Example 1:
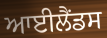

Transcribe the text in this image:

ਆਈਲੈਂਡਸ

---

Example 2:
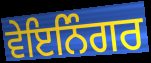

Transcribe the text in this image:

ਵੇਇਨਿੰਗਰ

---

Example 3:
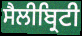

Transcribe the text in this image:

ਸੈਲੀਬ੍ਰਿਟੀ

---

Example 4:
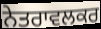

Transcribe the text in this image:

ਨੇਤਰਾਵਲਕਰ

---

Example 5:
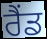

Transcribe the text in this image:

ਰੈਂਡ